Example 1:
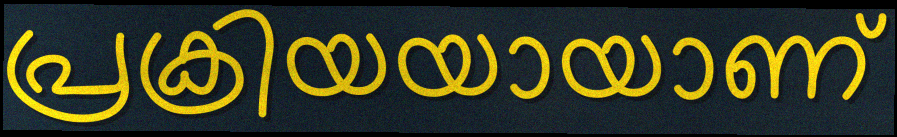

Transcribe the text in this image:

പ്രക്രിയയായാണ്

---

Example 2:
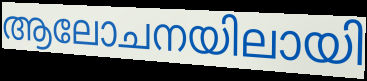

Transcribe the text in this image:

ആലോചനയിലായി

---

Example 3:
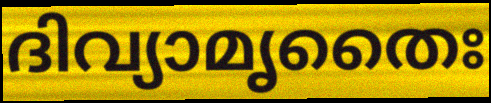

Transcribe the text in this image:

ദിവ്യാമൃതൈഃ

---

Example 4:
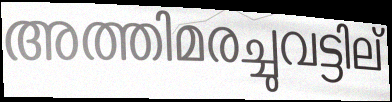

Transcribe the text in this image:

അത്തിമരച്ചുവട്ടില്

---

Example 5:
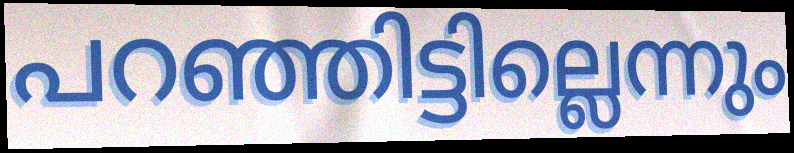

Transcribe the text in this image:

പറഞ്ഞിട്ടില്ലെന്നും